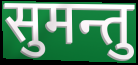
सुमन्तु